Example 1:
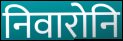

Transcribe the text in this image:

निवारोनि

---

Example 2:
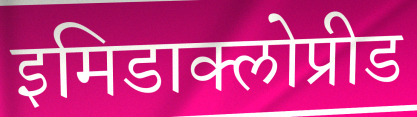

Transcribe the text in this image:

इमिडाक्लोप्रीड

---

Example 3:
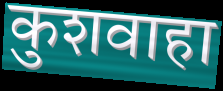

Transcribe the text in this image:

कुशवाहा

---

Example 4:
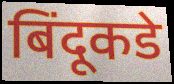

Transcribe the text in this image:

बिंदूकडे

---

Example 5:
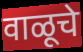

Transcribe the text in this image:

वाळूचे